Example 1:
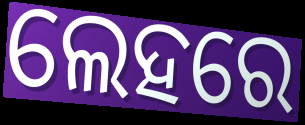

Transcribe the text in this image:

ଲେହରେ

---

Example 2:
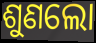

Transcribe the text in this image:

ଶୁଣଲୋ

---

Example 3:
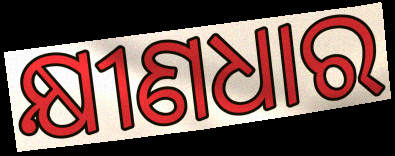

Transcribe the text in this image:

କ୍ଷୀଣଧାର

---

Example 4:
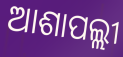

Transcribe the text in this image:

ଆଶାପଲ୍ଲୀ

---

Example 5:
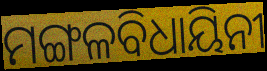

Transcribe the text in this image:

ମଙ୍ଗଳବିଧାୟିନୀ